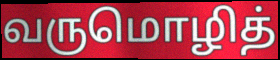
வருமொழித்